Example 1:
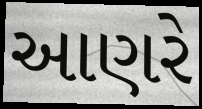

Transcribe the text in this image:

આણરે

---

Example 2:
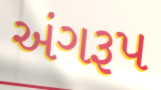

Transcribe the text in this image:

અંગરૂપ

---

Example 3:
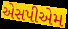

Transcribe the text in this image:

એસપીએમ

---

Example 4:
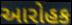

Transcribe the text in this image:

આરોહક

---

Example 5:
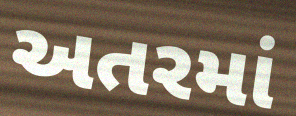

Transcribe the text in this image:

અતરમાં